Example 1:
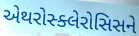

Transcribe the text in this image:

એથરોસ્ક્લેરોસિસને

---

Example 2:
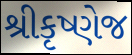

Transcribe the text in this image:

શ્રીકૃષ્ણેજ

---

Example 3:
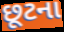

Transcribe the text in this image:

છૂટના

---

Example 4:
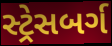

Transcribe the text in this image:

સ્ટ્રેસબર્ગ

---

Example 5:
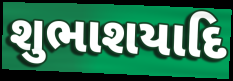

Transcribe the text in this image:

શુભાશયાદિ